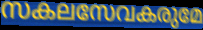
സകലസേവകരുമേ